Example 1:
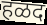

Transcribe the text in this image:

हळद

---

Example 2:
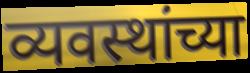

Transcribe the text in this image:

व्यवस्थांच्या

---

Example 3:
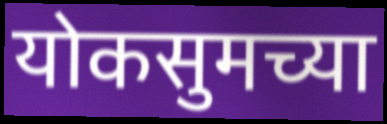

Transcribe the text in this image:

योकसुमच्या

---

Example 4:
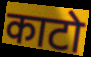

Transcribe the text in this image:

काटो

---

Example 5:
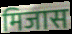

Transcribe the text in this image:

मिजास